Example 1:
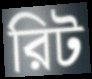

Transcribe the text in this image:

রিট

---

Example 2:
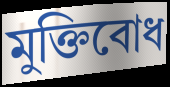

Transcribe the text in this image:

মুক্তিবোধ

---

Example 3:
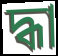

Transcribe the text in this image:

দ্ধা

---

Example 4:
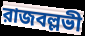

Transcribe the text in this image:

রাজবল্লভী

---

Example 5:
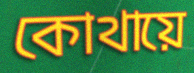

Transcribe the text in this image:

কোথায়ে